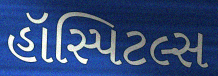
હૉસ્પિટલ્સ